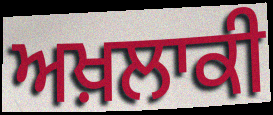
ਅਖ਼ਲਾਕੀ